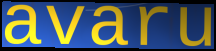
avaru